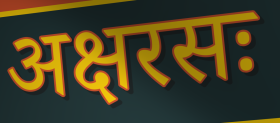
अक्षरसः